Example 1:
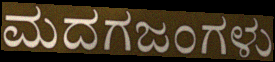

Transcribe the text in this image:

ಮದಗಜಂಗಳು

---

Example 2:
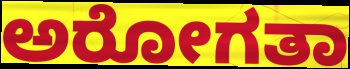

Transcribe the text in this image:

ಅರೋಗತಾ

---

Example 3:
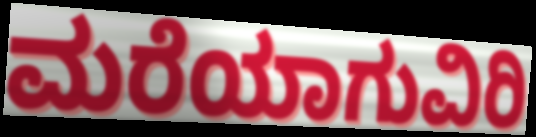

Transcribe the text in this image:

ಮರೆಯಾಗುವಿರಿ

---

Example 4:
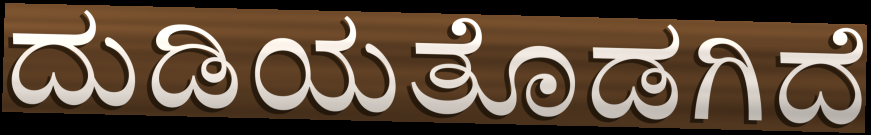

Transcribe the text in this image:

ದುಡಿಯತೊಡಗಿದೆ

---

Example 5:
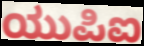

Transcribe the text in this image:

ಯುಪಿಐ